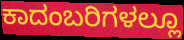
ಕಾದಂಬರಿಗಳಲ್ಲೂ